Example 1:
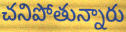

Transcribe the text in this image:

చనిపోతున్నారు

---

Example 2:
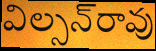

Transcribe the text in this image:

విల్సన్‌రావు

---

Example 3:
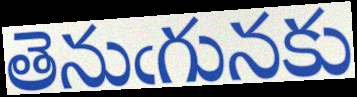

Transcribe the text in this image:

తెనుఁగునకు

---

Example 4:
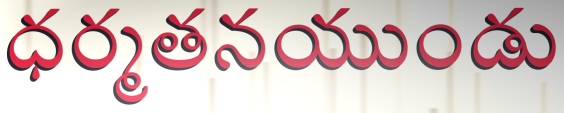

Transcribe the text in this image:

ధర్మతనయుండు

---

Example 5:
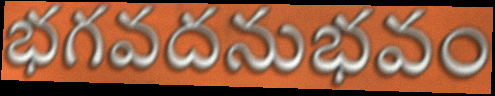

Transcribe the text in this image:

భగవదనుభవం